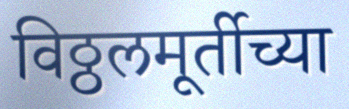
विठ्ठलमूर्तीच्या